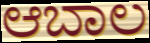
ಆಬಾಲ